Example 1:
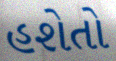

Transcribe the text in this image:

હશેતો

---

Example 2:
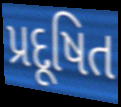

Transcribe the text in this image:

પ્રદૂષિત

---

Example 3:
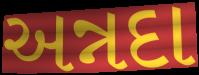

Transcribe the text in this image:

અન્નદા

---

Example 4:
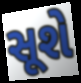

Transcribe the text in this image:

સૂશે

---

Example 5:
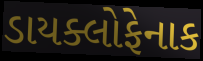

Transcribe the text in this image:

ડાયક્લોફેનાક